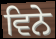
ਵਿਨੇ